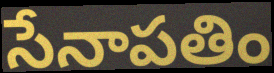
సేనాపతిం